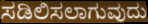
ಸಡಿಲಿಸಲಾಗುವುದು